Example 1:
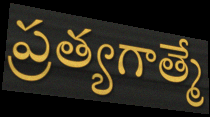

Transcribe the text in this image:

ప్రత్యగాత్మే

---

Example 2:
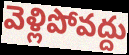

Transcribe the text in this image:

వెళ్లిపోవద్దు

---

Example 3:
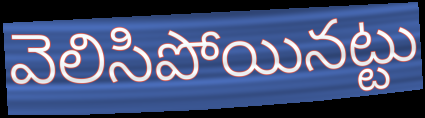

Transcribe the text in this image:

వెలిసిపోయినట్టు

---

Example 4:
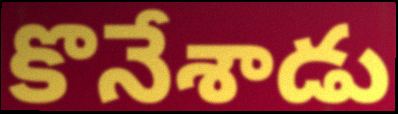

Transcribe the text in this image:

కొనేశాడు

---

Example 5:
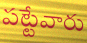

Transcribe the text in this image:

పట్టేవారు